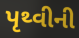
પૃથ્વીની